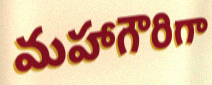
మహాగౌరిగా